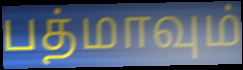
பத்மாவும்